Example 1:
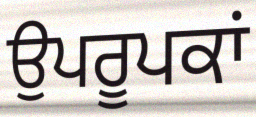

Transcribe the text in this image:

ਉਪਰੂਪਕਾਂ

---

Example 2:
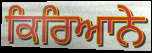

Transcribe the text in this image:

ਕਿਰਿਆਨੇ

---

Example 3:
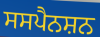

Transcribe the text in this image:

ਸਸਪੈਨਸ਼ਨ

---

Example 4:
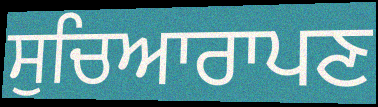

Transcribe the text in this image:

ਸੁਚਿਆਰਾਪਣ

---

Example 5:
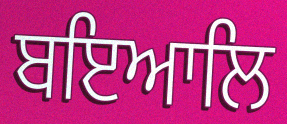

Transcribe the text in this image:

ਬਇਆਲਿ